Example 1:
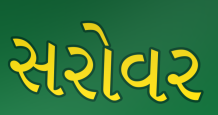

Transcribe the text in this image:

સરોવર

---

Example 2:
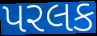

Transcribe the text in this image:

પરલક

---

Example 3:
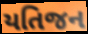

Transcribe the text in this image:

યતિજન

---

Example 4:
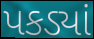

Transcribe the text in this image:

પકડ્યાં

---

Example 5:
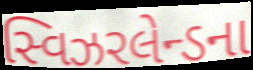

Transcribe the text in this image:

સ્વિઝરલેન્ડના